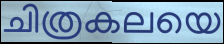
ചിത്രകലയെ